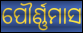
ପୌର୍ଣ୍ଣମାସ